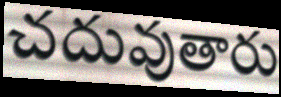
చదువుతారు